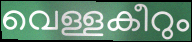
വെള്ളകീറും